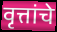
वृत्तांचे